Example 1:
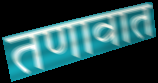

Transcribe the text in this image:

तणावात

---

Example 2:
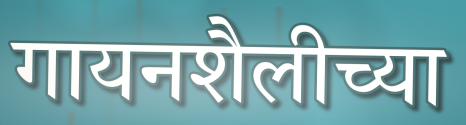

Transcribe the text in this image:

गायनशैलीच्या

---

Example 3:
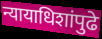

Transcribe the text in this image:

न्यायाधिशांपुढे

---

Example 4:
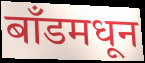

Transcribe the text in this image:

बाँडमधून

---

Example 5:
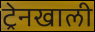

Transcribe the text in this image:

ट्रेनखाली